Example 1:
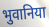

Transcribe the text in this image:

भुवानिया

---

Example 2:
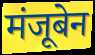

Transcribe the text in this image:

मंजूबेन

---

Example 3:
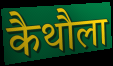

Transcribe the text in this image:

कैथौला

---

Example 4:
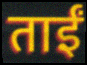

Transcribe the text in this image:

ताईं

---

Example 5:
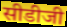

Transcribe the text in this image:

सीडीजी